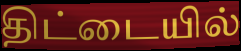
திட்டையில்